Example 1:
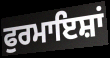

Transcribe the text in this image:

ਫੁਰਮਾਇਸ਼ਾਂ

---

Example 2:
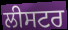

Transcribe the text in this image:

ਲੀਸਟਰ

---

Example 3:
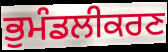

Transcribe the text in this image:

ਭੁਮੰਡਲੀਕਰਣ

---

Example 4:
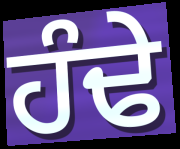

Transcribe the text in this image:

ਹੰਢੇ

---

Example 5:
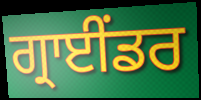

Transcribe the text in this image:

ਗ੍ਰਾਈਂਡਰ